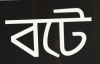
বটে